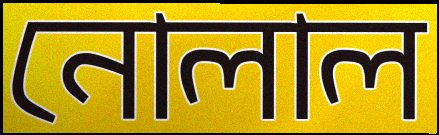
নোলাল